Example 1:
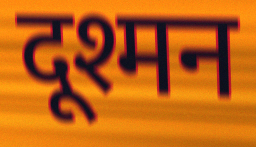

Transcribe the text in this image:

दूश्मन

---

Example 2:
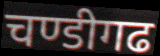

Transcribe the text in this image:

चण्डीगढ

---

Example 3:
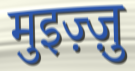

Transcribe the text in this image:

मुइज़्ज़ु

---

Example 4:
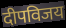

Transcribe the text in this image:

दीपविजय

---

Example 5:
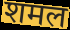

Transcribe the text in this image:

शमल